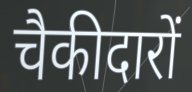
चैकीदारों